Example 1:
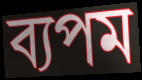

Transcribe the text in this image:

ব্যপম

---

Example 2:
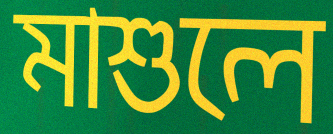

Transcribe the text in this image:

মাশুলে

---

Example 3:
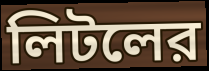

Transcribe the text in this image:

লিটলের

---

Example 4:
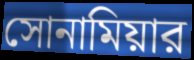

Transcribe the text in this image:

সোনামিয়ার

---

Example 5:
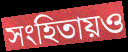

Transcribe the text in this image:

সংহিতায়ও